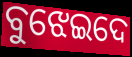
ବୁଝେଇଦେ